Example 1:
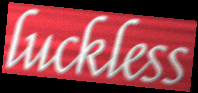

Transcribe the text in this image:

luckless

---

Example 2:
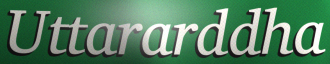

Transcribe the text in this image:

Uttararddha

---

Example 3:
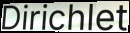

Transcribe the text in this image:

Dirichlet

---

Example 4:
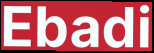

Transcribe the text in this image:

Ebadi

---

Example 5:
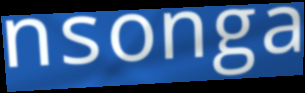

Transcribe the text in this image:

nsonga